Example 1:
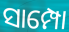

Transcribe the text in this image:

ସାମ୍ପୋ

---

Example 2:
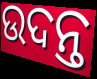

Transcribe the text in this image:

ଉଦନ୍ତ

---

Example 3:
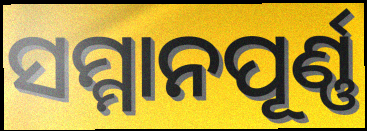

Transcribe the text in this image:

ସମ୍ମାନପୂର୍ଣ୍ଣ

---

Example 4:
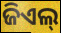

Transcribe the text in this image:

ଜିଏଲ୍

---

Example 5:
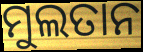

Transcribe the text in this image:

ମୁଲତାନ